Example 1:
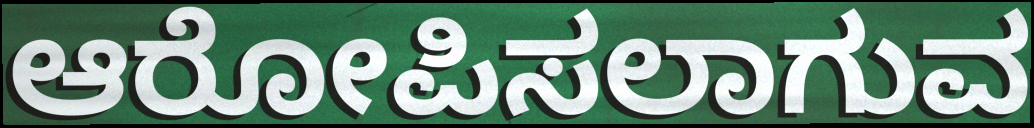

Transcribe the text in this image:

ಆರೋಪಿಸಲಾಗುವ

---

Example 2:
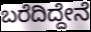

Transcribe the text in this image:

ಬರೆದಿದ್ದೇನೆ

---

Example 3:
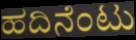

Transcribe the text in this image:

ಹದಿನೆಂಟು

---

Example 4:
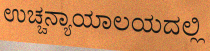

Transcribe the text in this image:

ಉಚ್ಚನ್ಯಾಯಾಲಯದಲ್ಲಿ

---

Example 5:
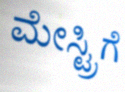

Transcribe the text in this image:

ಮೇಸ್ಟ್ರಿಗೆ